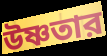
উষ্ণতার